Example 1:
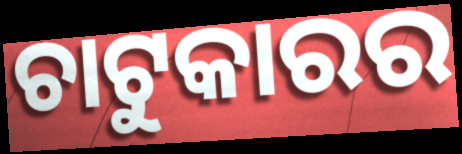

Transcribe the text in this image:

ଚାଟୁକାରର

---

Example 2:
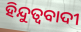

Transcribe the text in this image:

ହିନ୍ଦୁତ୍ୱବାଦୀ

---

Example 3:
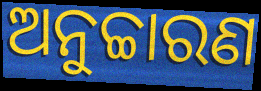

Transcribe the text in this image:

ଅନୁଚ୍ଚାରଣ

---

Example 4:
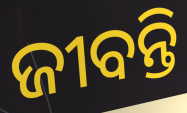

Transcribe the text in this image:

ଜୀବନ୍ତି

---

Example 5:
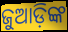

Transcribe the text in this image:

ଜୁଆଡ଼ିଙ୍କ